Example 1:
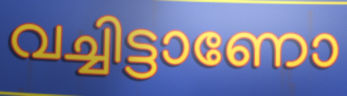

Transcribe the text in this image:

വച്ചിട്ടാണോ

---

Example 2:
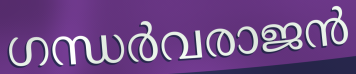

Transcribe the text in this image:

ഗന്ധർവരാജൻ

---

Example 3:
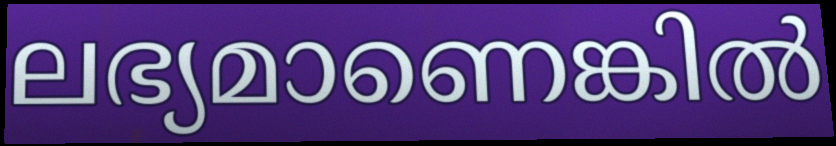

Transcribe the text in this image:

ലഭ്യമാണെങ്കിൽ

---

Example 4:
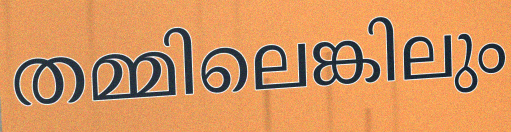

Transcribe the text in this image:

തമ്മിലെങ്കിലും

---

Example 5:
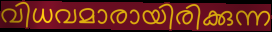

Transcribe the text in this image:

വിധവമാരായിരിക്കുന്ന